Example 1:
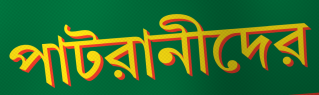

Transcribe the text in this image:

পাটরানীদের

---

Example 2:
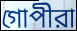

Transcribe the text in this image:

গোপীরা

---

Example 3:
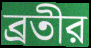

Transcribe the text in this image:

ব্রতীর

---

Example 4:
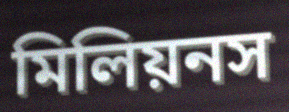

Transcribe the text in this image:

মিলিয়নস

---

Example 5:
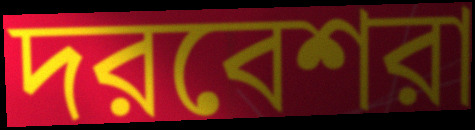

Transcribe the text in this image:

দরবেশরা